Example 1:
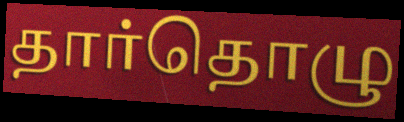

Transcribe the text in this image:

தார்தொழு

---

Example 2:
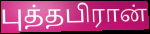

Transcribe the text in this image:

புத்தபிரான்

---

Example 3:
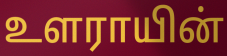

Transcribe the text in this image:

உளராயின்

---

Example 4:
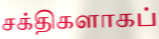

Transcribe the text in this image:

சக்திகளாகப்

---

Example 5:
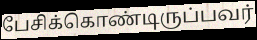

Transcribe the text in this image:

பேசிக்கொண்டிருப்பவர்